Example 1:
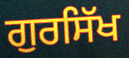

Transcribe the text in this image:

ਗੁਰਸਿੱਖ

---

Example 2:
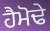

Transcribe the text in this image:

ਹੈਮੋਢੇ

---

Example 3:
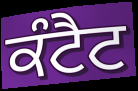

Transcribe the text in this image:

ਕੰਟੈਟ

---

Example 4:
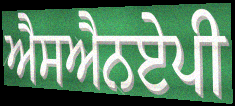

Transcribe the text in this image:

ਐਸਐਨਏਪੀ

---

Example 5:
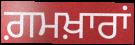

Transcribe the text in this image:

ਗ਼ਮਖ਼ਾਰਾਂ